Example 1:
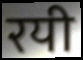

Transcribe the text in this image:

रयी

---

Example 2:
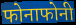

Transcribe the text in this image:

फोनाफोनी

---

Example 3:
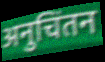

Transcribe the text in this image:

अनुचिंतन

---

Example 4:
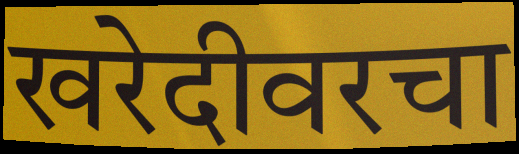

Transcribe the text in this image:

खरेदीवरचा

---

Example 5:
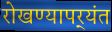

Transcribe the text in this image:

रोखण्यापर्यंत